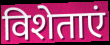
विशेताएं